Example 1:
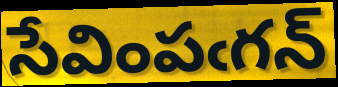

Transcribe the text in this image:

సేవింపఁగన్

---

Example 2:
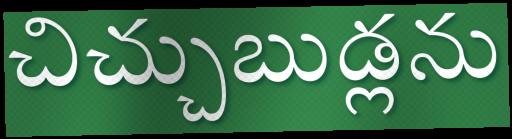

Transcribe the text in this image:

చిచ్చుబుడ్లను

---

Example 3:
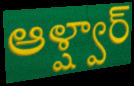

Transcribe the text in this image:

ఆళ్ష్వార్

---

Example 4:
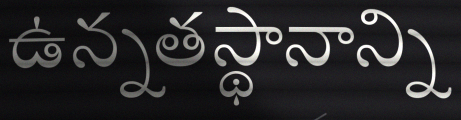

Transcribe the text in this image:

ఉన్నతస్థానాన్ని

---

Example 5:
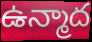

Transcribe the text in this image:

ఉన్మాద